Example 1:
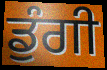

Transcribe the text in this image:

ਡੁੰਗੀ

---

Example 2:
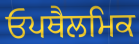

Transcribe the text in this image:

ਓਪਥੈਲਮਿਕ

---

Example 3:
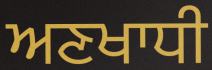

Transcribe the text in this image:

ਅਣਖਾਧੀ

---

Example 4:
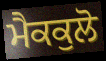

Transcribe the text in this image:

ਮੈਕਕੁਲੋ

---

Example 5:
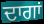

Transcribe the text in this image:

ਦਾਗਾਂ